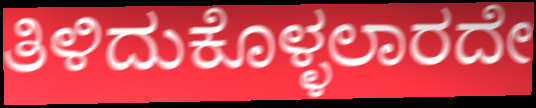
ತಿಳಿದುಕೊಳ್ಳಲಾರದೇ